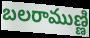
బలరాముణ్ణి